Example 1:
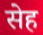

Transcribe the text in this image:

सेह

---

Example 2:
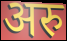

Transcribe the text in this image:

अरु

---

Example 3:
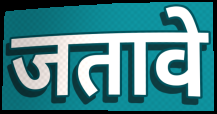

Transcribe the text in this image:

जतावे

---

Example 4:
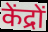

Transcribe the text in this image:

केंद्रों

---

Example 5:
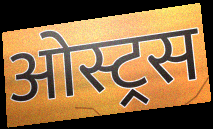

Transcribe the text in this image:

ओस्ट्रस